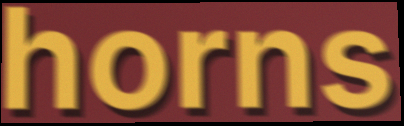
horns